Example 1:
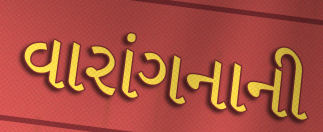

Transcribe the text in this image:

વારાંગનાની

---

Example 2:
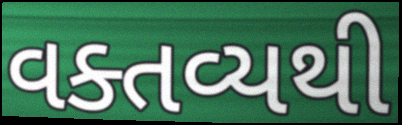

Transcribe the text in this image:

વક્તવ્યથી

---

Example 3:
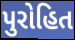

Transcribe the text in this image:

પુરોહિત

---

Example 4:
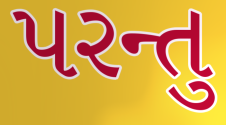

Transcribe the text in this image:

પરન્તુ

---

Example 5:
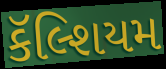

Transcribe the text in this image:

કૅલ્શિયમ